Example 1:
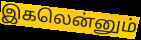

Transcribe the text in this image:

இகலென்னும்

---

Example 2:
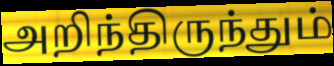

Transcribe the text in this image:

அறிந்திருந்தும்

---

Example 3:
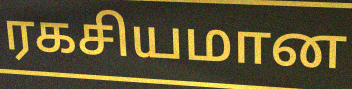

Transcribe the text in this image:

ரகசியமான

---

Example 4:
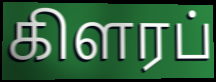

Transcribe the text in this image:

கிளரப்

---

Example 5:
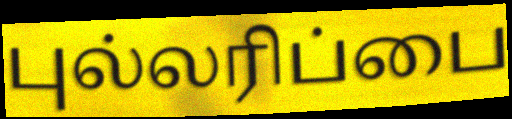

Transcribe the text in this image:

புல்லரிப்பை